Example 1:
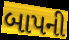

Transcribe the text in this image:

બાપની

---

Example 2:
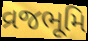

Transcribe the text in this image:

વ્રજભૂમિ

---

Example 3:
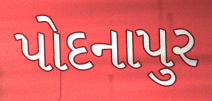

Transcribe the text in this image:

પોદનાપુર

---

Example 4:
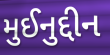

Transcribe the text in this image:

મુઈનુદ્દીન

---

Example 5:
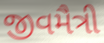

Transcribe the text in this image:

જીવમૈત્રી